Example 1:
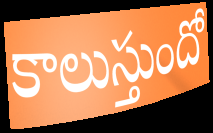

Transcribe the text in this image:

కాలుస్తుందో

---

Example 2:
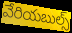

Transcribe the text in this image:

వేరియబుల్స్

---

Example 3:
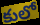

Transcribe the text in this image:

కులో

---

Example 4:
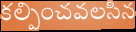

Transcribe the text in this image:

కల్పించవలసిన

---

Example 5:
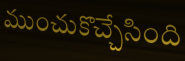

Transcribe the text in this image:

ముంచుకొచ్చేసింది